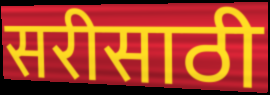
सरीसाठी